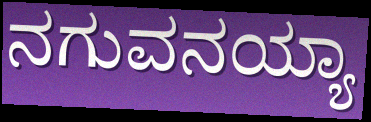
ನಗುವನಯ್ಯಾ